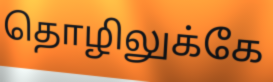
தொழிலுக்கே